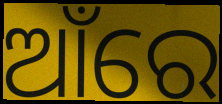
ଆଁରେ